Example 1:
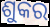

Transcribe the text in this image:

ଶୁକର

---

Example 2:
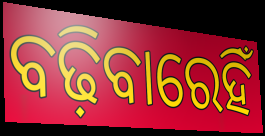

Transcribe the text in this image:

ବଢ଼ିବାରେହିଁ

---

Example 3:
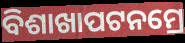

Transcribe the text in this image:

ବିଶାଖାପଟନମ୍ରେ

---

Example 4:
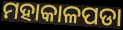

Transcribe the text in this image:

ମହାକାଳପଡା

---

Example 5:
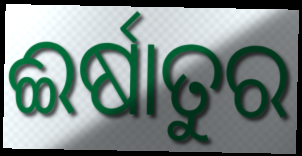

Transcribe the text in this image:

ଈର୍ଷାତୁର